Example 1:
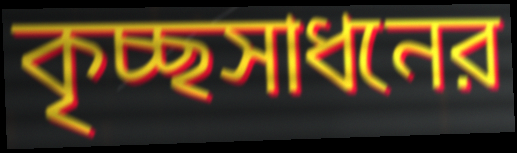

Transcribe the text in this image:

কৃচ্ছসাধনের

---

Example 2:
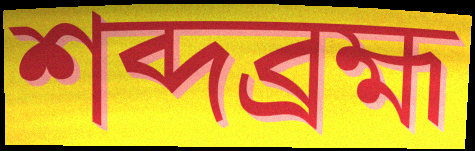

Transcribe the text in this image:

শব্দব্রহ্ম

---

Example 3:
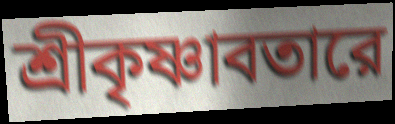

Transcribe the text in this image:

শ্রীকৃষ্ণাবতারে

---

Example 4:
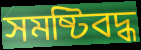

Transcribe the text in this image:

সমষ্টিবদ্ধ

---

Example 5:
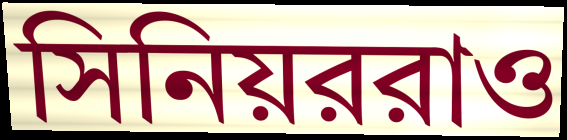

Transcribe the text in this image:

সিনিয়ররাও